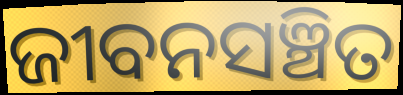
ଜୀବନସଞ୍ଚିତ